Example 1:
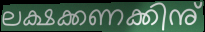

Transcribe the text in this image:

ലക്ഷക്കണക്കിനു്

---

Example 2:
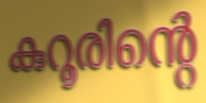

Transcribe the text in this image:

കുറൂരിന്റെ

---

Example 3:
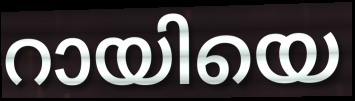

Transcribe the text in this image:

റായിയെ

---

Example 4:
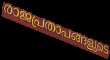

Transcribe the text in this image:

രാജപ്രതാപങ്ങളുടെ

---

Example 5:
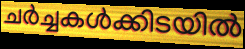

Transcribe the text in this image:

ചർച്ചകൾക്കിടയിൽ